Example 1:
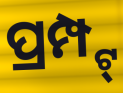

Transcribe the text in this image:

ପ୍ରମ୍ପ୍ଟ୍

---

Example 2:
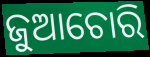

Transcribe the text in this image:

ଜୁଆଚୋରି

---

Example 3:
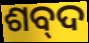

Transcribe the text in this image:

ଶବ୍‍ଦ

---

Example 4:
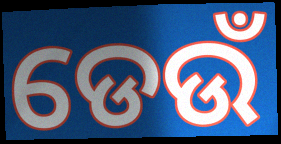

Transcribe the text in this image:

ଡେଉଁ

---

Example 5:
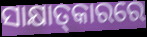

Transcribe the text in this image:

ସାକ୍ଷାତ୍‌କାରରେ